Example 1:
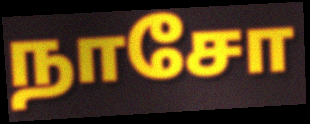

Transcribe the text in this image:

நாசோ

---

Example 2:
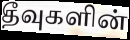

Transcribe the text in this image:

தீவுகளின்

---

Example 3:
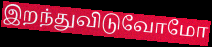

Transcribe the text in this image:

இறந்துவிடுவோமோ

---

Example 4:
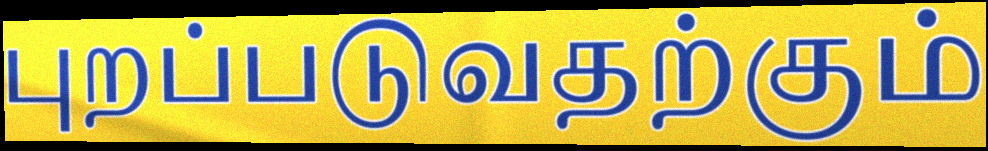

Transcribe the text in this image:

புறப்படுவதற்கும்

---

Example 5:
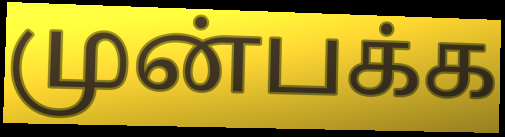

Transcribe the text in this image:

முன்பக்க